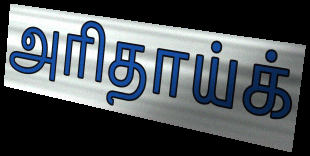
அரிதாய்க்